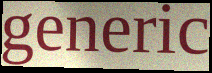
generic